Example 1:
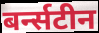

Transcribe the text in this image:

बर्न्सटीन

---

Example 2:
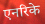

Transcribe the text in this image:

एनरिके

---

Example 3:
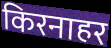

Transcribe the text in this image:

किरनाहर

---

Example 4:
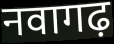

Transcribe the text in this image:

नवागढ़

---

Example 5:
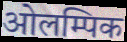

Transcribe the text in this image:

ओलम्पिक